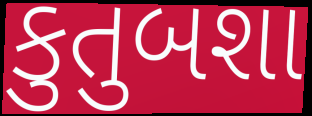
કુતુબશા